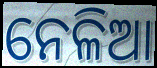
ନେଳିଆ